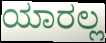
ಯಾರಲ್ಲ